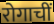
रोगाचीं